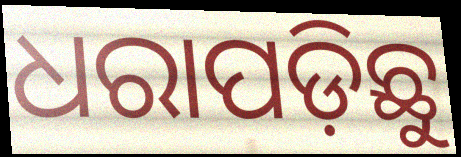
ଧରାପଡ଼ିଛୁ